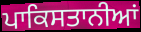
ਪਾਕਿਸਤਾਨੀਆਂ